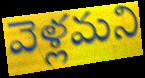
వెళ్లమని